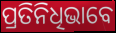
ପ୍ରତିନିଧିଭାବେ